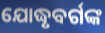
ଯୋଦ୍ଧୃବର୍ଗଙ୍କ